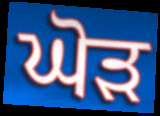
ਘੋੜ